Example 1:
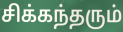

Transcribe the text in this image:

சிக்கந்தரும்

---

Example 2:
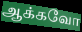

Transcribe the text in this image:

ஆக்கவோ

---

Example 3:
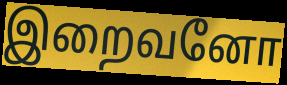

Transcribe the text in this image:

இறைவனோ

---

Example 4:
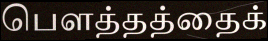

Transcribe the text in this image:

பௌத்தத்தைக்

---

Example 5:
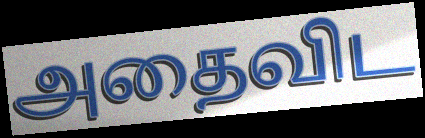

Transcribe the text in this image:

அதைவிட